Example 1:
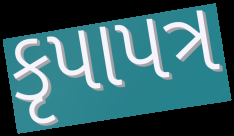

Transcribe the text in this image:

કૃપાપત્ર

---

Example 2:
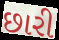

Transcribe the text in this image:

છારી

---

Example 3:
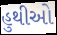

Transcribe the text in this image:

હુથીઓ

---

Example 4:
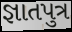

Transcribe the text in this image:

જ્ઞાતપુત્ર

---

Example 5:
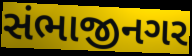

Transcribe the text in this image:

સંભાજીનગર